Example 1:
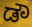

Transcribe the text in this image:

ಡೌ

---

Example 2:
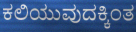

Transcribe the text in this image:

ಕಲಿಯುವುದಕ್ಕಿಂತ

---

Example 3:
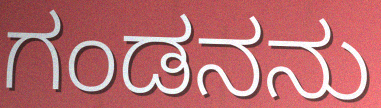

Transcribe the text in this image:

ಗಂಡನನು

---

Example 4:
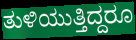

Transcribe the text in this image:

ತುಳಿಯುತ್ತಿದ್ದರೂ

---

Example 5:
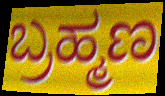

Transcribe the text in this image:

ಬ್ರಹ್ಮಣ